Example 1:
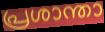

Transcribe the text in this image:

പ്രശാന്താ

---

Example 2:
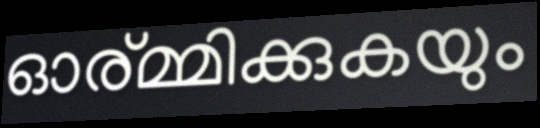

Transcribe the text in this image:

ഓര്മ്മിക്കുകയും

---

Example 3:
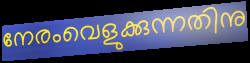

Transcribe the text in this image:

നേരംവെളുക്കുന്നതിനു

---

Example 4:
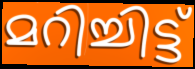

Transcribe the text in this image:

മറിച്ചിട്ട്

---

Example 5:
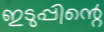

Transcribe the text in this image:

ഇടുപ്പിന്റെ